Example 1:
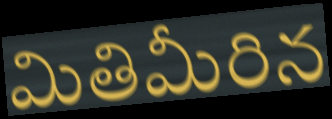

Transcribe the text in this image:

మితిమీరిన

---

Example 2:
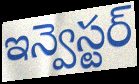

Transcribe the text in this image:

ఇన్వెస్టర్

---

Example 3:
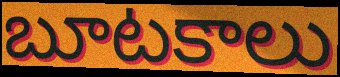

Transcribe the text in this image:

బూటకాలు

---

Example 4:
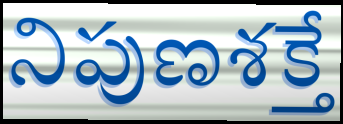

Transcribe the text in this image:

నిపుణశక్తే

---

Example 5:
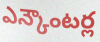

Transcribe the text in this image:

ఎన్కౌంటర్ల